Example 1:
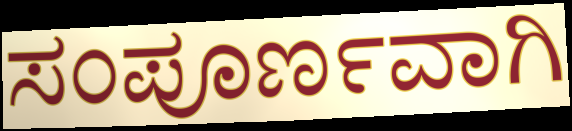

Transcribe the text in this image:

ಸಂಪೂರ್ಣವಾಗಿ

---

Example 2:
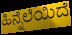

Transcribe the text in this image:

ಹಿನ್ನೆಲೆಯಿದೆ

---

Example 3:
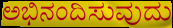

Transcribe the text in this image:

ಅಭಿನಂದಿಸುವುದು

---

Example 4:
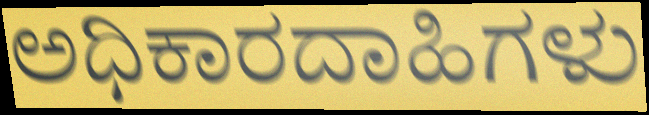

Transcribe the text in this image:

ಅಧಿಕಾರದಾಹಿಗಳು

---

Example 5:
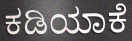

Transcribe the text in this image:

ಕಡಿಯಾಕೆ